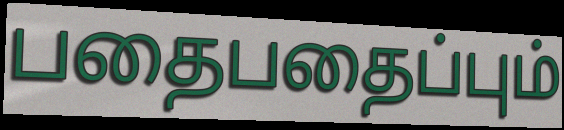
பதைபதைப்பும்